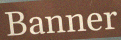
Banner